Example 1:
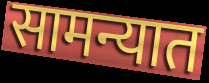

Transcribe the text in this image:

सामन्यात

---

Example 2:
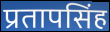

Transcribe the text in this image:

प्रतापसिंह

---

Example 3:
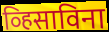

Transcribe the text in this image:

व्हिसाविना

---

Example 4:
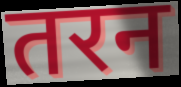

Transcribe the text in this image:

तरन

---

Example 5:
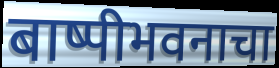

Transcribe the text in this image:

बाष्पीभवनाचा